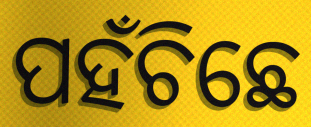
ପହଁଚିଛେ